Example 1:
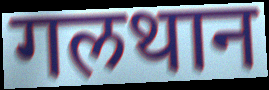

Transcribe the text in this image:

गलथान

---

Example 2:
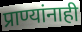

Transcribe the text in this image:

प्राण्यांनाही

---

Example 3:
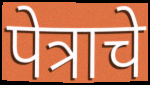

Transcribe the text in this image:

पेत्राचे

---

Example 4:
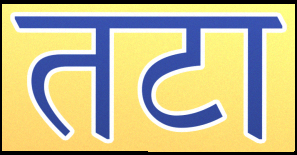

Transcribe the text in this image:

तटा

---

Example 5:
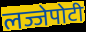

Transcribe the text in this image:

लज्जेपोटी